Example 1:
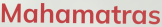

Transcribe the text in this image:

Mahamatras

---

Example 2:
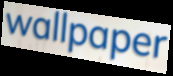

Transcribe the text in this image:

wallpaper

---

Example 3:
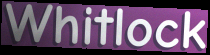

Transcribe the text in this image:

Whitlock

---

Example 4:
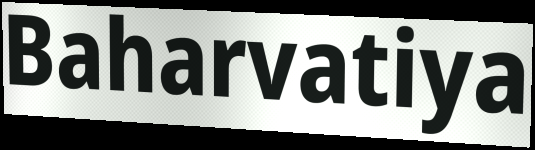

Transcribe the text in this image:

Baharvatiya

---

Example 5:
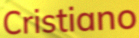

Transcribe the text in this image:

Cristiano